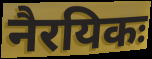
नैरयिकः